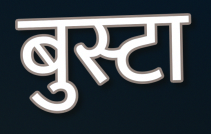
बुस्टा